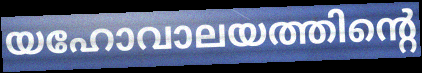
യഹോവാലയത്തിന്റെ